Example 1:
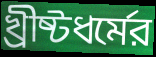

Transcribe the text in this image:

খ্রীষ্টধর্মের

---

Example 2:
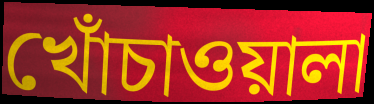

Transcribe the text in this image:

খোঁচাওয়ালা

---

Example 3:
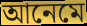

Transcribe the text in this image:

আনেমে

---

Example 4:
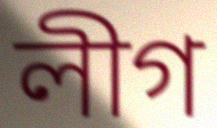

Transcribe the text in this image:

লীগ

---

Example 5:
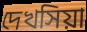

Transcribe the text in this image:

দেখসিয়া